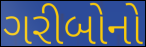
ગરીબોનો